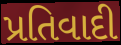
પ્રતિવાદી